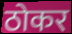
ठोकर